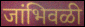
जांभिवळी